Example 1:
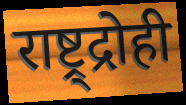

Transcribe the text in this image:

राष्ट्र्द्रोही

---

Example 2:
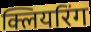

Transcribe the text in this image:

क्लियरिंग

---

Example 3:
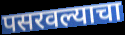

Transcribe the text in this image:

पसरवल्याचा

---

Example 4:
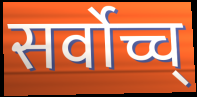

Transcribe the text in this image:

सर्वोच्च्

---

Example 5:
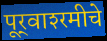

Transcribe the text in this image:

पूर्वाश्रमीचे